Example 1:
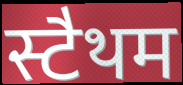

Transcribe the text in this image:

स्टैथम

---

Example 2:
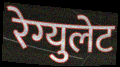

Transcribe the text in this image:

रेग्‍युलेट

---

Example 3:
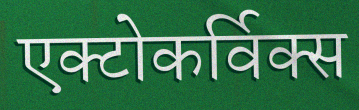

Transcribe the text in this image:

एक्टोकर्विक्स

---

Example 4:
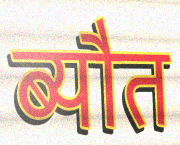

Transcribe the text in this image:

ब्यौत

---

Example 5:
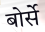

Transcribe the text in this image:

बोर्से